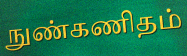
நுண்கணிதம்